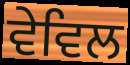
ਵੇਵਿਲ